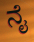
ನೈ